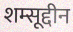
शम्सूद्दीन